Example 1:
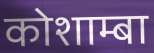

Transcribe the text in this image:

कोशाम्बा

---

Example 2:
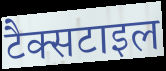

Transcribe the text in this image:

टैक्सटाइल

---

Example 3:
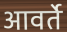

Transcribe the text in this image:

आवर्ते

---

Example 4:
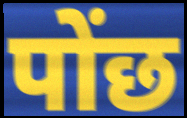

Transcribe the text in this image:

पोंछ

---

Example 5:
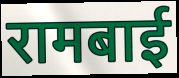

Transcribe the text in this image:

रामबाई